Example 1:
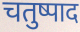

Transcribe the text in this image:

चतुष्पाद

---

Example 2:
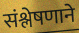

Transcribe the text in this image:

संश्लेषणाने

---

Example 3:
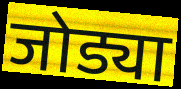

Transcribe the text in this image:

जोड्या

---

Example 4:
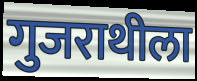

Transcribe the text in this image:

गुजराथीला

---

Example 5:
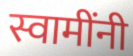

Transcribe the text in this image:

स्वामींनी